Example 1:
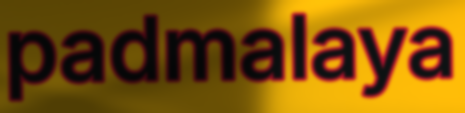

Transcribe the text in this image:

padmalaya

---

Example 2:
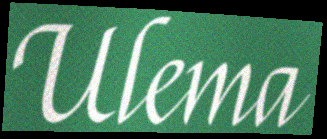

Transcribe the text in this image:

Ulema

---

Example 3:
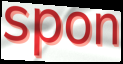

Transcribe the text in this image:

spon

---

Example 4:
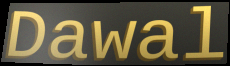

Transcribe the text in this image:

Dawal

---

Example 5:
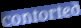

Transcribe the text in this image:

contorted